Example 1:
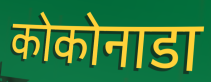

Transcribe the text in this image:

कोकोनाडा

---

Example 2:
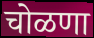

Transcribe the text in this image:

चोळणा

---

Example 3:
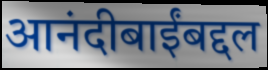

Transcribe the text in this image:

आनंदीबाईंबद्दल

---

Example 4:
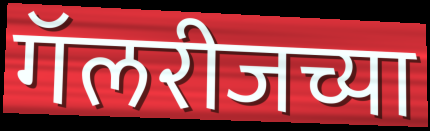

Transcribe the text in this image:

गॅलरीजच्या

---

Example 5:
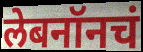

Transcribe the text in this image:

लेबनॉनचं